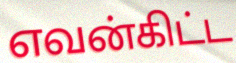
எவன்கிட்ட